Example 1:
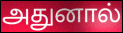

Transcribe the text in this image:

அதுனால்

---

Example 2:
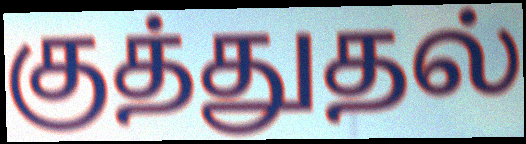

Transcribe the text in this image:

குத்துதல்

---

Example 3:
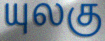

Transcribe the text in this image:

யுலகு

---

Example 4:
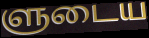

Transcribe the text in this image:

ளுடைய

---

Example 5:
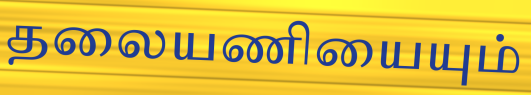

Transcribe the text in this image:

தலையணியையும்